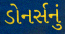
ડોનર્સનું